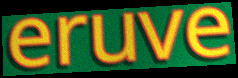
eruve